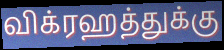
விக்ரஹத்துக்கு